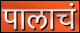
पालाचं